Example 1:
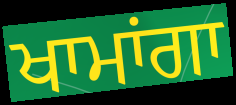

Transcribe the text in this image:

ਖਾਮਾਂਗਾ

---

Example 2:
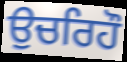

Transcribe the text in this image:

ਉਚਰਿਹੌ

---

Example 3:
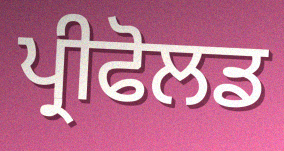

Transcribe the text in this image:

ਪ੍ਰੀਫੋਲਡ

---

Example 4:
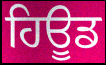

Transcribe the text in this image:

ਹਿਊਡ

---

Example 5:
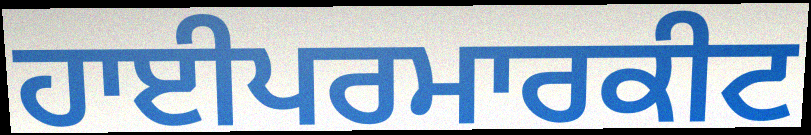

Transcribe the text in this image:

ਹਾਈਪਰਮਾਰਕੀਟ